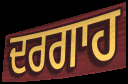
ਦਰਗਾਹ